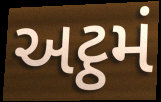
અટ્ઠમં